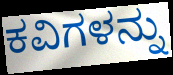
ಕವಿಗಳನ್ನು